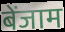
बेंजाम